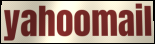
yahoomail